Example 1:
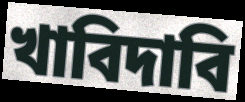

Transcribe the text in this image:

খাবিদাবি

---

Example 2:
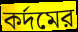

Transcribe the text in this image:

কর্দমের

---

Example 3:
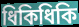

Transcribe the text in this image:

ধিকিধিকি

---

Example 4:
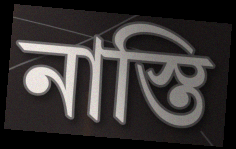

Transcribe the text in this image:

নাস্তি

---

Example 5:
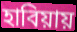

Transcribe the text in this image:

হাবিয়ায়